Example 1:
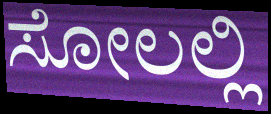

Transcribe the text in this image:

ಸೋಲಲ್ಲಿ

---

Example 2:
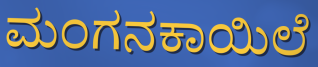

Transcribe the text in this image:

ಮಂಗನಕಾಯಿಲೆ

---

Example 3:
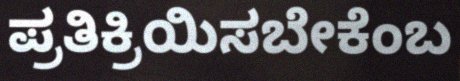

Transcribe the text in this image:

ಪ್ರತಿಕ್ರಿಯಿಸಬೇಕೆಂಬ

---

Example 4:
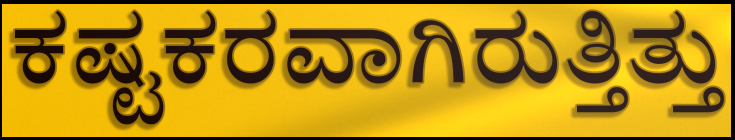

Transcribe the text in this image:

ಕಷ್ಟಕರವಾಗಿರುತ್ತಿತ್ತು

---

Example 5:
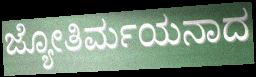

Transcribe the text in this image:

ಜ್ಯೋತಿರ್ಮಯನಾದ